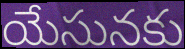
యేసునకు